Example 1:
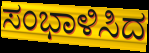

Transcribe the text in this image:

ಸಂಭಾಳಿಸಿದ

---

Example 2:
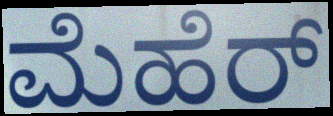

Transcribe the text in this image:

ಮೆಹೆರ್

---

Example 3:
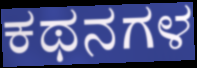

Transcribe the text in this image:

ಕಥನಗಳ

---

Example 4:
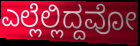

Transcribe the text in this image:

ಎಲ್ಲೆಲ್ಲಿದ್ದವೋ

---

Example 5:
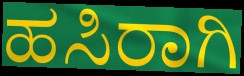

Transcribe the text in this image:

ಹಸಿರಾಗಿ